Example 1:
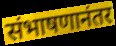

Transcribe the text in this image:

संभाषणानंतर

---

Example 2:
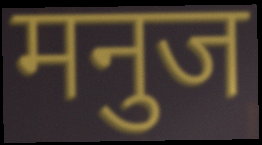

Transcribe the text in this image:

मनुज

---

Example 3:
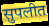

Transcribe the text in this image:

सुपलीत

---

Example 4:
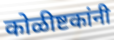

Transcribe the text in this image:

कोळीष्टकांनी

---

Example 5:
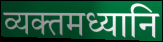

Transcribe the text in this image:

व्यक्तमध्यानि